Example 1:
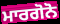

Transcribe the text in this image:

ਮਾਰਗੋਨੋ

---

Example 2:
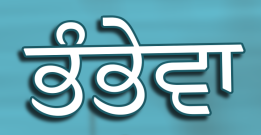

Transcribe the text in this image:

ਭੰਭੇਵਾ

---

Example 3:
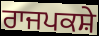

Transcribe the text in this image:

ਰਾਜਪਕਸ਼ੇ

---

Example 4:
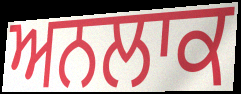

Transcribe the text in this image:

ਅਨਲਾਕ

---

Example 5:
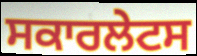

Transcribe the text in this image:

ਸਕਾਰਲੇਟਸ